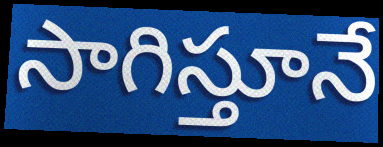
సాగిస్తూనే